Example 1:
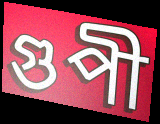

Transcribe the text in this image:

গুপী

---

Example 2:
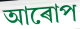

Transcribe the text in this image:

আৰোপ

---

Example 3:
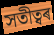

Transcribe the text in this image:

সতীত্বৰ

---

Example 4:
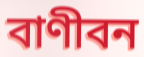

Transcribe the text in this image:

বাণীবন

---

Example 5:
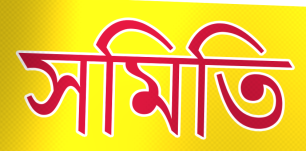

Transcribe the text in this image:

সমিতি